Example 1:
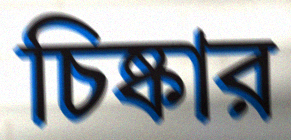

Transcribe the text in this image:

চিষ্কার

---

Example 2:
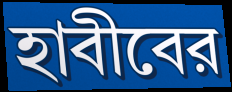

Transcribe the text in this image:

হাবীবের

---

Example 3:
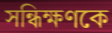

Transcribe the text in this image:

সন্ধিক্ষণকে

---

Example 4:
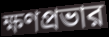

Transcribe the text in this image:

ক্ষণপ্রভার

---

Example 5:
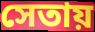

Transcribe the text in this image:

সেতায়